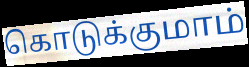
கொடுக்குமாம்